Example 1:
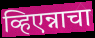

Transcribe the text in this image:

व्हिएन्नाचा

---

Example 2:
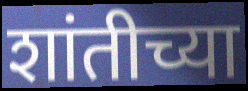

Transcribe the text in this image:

शांतीच्या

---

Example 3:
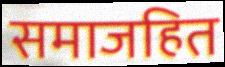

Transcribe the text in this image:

समाजहित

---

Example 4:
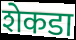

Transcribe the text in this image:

शेकडा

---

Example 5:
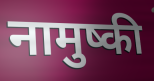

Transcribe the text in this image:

नामुष्की